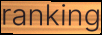
ranking